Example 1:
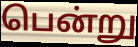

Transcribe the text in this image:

பென்று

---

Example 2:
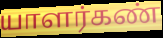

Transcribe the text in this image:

யாளர்கண்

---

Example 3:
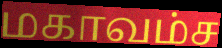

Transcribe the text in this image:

மகாவம்ச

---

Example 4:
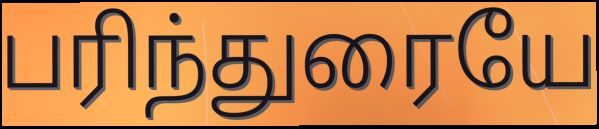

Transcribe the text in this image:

பரிந்துரையே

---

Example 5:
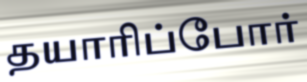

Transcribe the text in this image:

தயாரிப்போர்